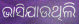
ଭାସିଯାଉଥିଲି